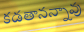
కడతానన్నావు